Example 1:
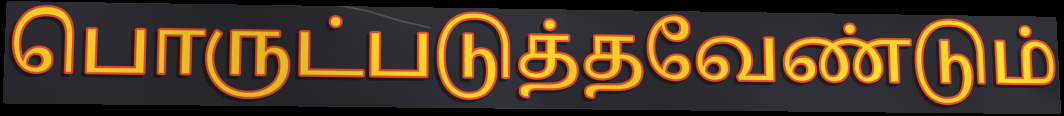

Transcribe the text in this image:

பொருட்படுத்தவேண்டும்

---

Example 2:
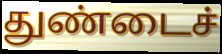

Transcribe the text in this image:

துண்டைச்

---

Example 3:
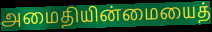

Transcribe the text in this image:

அமைதியின்மையைத்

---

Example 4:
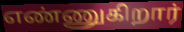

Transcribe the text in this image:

எண்ணுகிறார்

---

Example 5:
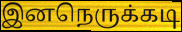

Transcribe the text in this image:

இனநெருக்கடி